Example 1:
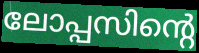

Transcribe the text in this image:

ലോപ്പസിന്റെ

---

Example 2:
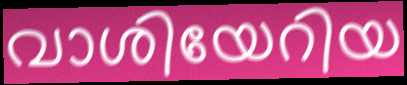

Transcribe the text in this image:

വാശിയേറിയ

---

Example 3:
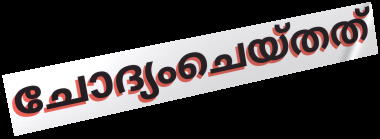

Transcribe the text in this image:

ചോദ്യംചെയ്തത്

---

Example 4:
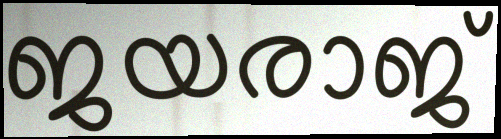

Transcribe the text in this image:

ജയരാജ്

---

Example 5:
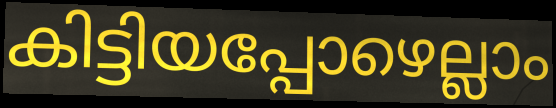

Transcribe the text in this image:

കിട്ടിയപ്പോഴെല്ലാം